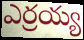
ఎర్రయ్య